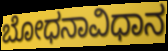
ಬೋಧನಾವಿಧಾನ